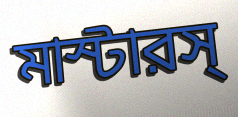
মাস্টারস্